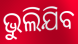
ଭୁଲିଯିବ